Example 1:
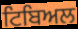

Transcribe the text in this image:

ਟਿਬਿਅਲ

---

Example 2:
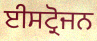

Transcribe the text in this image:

ਈਸਟ੍ਰੋਜਨ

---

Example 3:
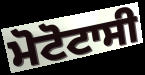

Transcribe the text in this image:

ਮੋਟੋਟਾਸੀ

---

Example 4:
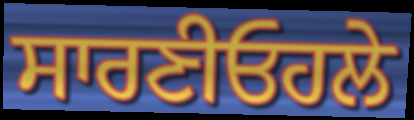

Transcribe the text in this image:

ਸਾਰਣੀਓਹਲੇ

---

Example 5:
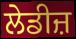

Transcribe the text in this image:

ਲੇਡੀਜ਼